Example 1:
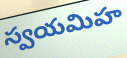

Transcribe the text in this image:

స్వయమిహ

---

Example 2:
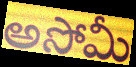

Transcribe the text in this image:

అసోమీ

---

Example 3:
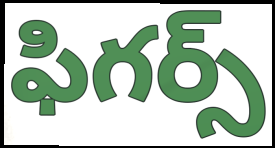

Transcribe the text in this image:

ఫిగర్స్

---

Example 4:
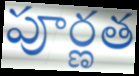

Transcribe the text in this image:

పూర్ణత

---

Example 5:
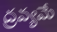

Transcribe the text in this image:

ద్రవ్యమే